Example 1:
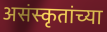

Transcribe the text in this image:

असंस्कृतांच्या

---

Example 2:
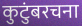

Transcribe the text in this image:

कुटुंबरचना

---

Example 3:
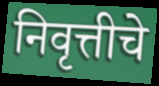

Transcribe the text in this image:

निवृत्तीचे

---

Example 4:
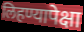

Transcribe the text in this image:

लिहण्यापेक्षा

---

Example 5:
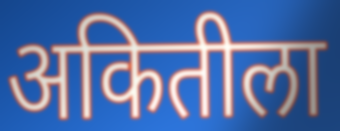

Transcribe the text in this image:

अकितीला